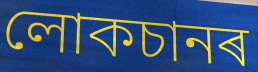
লোকচানৰ